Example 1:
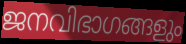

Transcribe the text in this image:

ജനവിഭാഗങ്ങളും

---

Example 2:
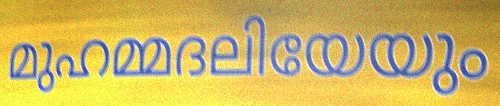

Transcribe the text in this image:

മുഹമ്മദലിയേയും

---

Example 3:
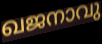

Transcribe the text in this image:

ഖജനാവു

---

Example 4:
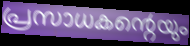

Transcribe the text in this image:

പ്രസാധകന്റെയും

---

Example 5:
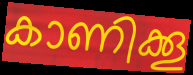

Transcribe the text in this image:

കാണിക്കൂ